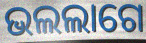
ଭଲଲାଗେ